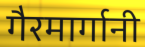
गैरमार्गानी